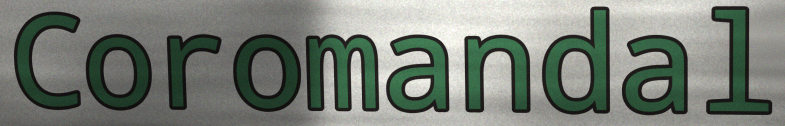
Coromandal